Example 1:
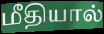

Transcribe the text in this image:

மீதியால்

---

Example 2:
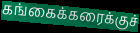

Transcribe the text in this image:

கங்கைக்கரைக்குச்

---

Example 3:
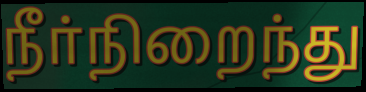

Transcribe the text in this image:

நீர்நிறைந்து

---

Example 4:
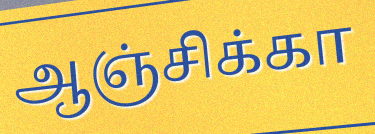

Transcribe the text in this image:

ஆஞ்சிக்கா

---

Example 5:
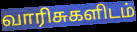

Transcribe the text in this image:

வாரிசுகளிடம்